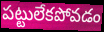
పట్టులేకపోవడం